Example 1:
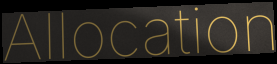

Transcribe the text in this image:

Allocation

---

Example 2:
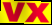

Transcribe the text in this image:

vx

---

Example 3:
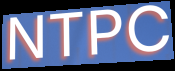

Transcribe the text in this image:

NTPC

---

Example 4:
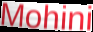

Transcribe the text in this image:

Mohini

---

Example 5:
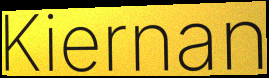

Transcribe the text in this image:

Kiernan